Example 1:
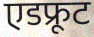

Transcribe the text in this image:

एडफ्रूट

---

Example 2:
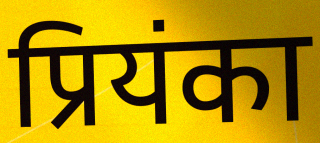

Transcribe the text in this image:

प्रियंका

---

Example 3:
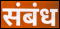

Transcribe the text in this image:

संबंध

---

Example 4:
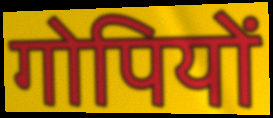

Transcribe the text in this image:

गोपियों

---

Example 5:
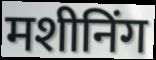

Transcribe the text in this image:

मशीनिंग